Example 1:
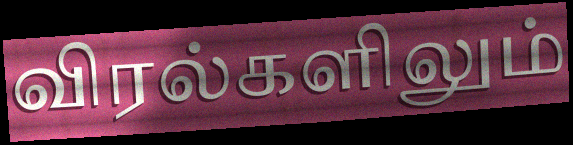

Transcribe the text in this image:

விரல்களிலும்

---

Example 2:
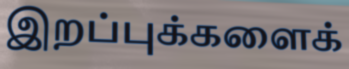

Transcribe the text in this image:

இறப்புக்களைக்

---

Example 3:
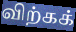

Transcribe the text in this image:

விற்கக்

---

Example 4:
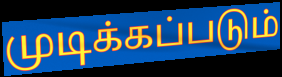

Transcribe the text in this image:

முடிக்கப்படும்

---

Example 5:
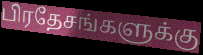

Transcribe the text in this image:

பிரதேசங்களுக்கு